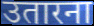
उतारना